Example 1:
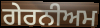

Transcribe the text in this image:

ਗੇਰਨੀਅਮ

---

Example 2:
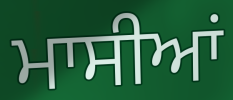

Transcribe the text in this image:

ਮਾਸੀਆਂ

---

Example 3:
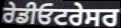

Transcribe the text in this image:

ਰੇਡੀਓਟਰੇਸਰ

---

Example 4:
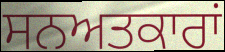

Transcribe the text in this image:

ਸਨਅਤਕਾਰਾਂ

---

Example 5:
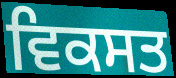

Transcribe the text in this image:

ਵਿਕਸਤ